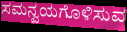
ಸಮನ್ವಯಗೊಳಿಸುವ